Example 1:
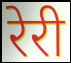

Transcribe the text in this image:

रेरी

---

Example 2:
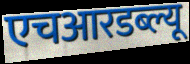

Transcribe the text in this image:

एचआरडब्ल्यू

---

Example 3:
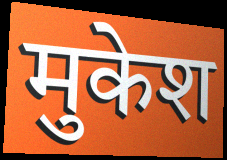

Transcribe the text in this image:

मुकेश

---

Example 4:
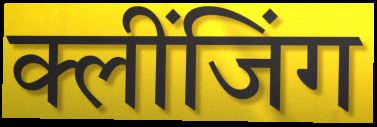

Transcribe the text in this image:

क्लींजिंग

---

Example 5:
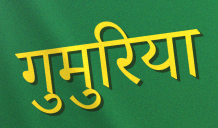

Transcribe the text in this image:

गुमुरिया